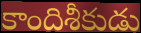
కాందిశీకుడు